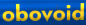
obovoid